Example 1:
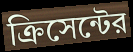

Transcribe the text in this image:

ক্রিসেন্টের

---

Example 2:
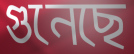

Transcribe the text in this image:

গুনেছে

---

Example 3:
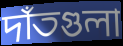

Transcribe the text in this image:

দাঁতগুলা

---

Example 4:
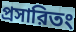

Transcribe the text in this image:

প্রসারিতং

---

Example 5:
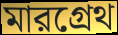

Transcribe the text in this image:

মারগ্রেথ